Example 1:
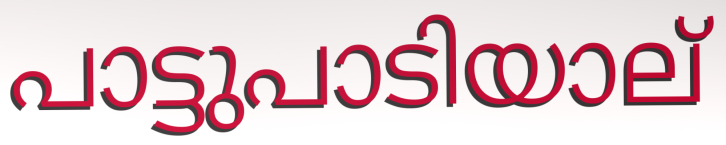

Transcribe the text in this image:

പാട്ടുപാടിയാല്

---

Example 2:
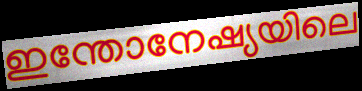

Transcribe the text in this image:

ഇന്തോനേഷ്യയിലെ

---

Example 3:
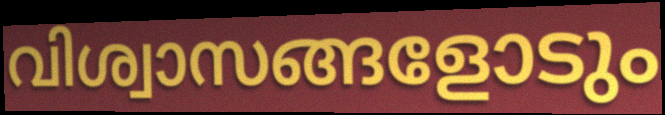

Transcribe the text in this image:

വിശ്വാസങ്ങളോടും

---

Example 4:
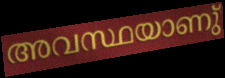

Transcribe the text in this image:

അവസ്ഥയാണു്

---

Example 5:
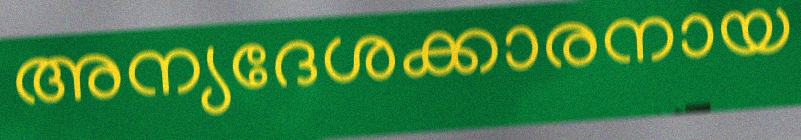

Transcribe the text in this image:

അന്യദേശക്കാരനായ